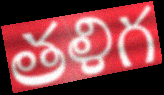
తళిగ